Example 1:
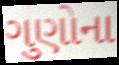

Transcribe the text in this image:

ગુણોના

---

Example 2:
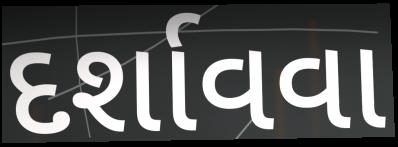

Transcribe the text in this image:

દર્શાવવા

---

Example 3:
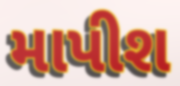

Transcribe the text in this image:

માપીશ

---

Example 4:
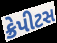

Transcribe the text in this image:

ક્રેપીટસ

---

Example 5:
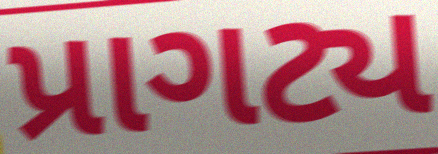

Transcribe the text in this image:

પ્રાગટ્ય